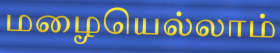
மழையெல்லாம்